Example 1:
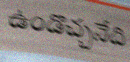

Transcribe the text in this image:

ఉండొచ్చనేది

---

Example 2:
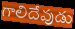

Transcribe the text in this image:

గాలిదేవుడు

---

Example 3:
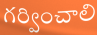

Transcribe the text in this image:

గర్వించాలి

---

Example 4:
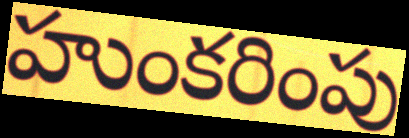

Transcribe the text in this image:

హుంకరింపు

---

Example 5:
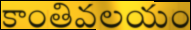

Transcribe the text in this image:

కాంతివలయం